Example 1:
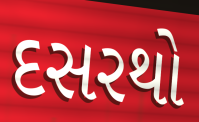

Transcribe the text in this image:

દસરથો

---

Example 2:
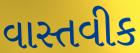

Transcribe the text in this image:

વાસ્તવીક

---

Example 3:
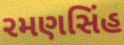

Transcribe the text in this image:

રમણસિંહ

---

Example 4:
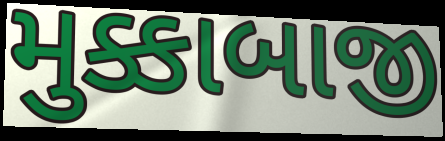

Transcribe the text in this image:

મુક્કાબાજી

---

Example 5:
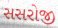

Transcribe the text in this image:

સસરોજી